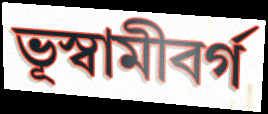
ভূস্বামীবর্গ